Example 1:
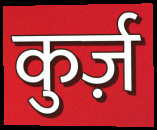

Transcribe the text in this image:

कुर्ज़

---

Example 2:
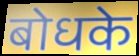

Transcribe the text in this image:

बोधके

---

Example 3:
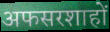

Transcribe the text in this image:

अफसरशाहों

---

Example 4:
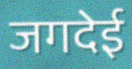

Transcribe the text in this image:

जगदेई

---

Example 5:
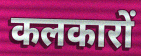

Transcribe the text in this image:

कलकारों